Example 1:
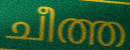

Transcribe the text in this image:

ചീത്ത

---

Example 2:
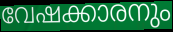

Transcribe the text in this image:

വേഷക്കാരനും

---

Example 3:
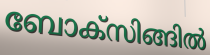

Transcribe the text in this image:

ബോക്സിങ്ങിൽ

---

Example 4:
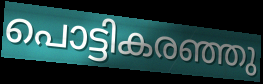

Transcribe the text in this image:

പൊട്ടികരഞ്ഞു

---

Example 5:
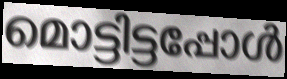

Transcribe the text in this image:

മൊട്ടിട്ടപ്പോൾ